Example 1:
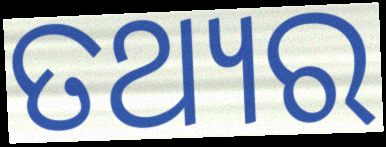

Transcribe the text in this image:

ତଥ୍ୟର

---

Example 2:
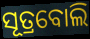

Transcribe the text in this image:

ସୂତ୍ରବୋଲି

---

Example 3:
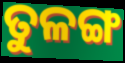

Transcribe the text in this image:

ତୁଳଙ୍ଗ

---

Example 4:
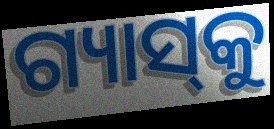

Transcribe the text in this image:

ଗ୍ୟାସ୍‌କୁ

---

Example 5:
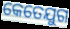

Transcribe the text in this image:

କେତେଯୁଗ